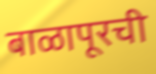
बाळापूरची